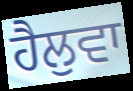
ਹੈਲੁਵਾ